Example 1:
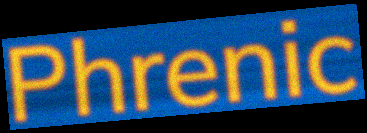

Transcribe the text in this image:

Phrenic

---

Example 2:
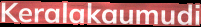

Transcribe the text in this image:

Keralakaumudi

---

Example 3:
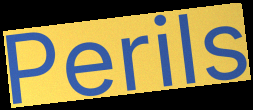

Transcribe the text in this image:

Perils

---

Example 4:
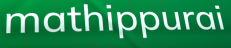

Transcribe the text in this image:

mathippurai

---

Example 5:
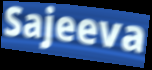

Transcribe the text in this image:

Sajeeva